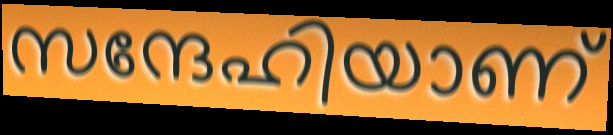
സന്ദേഹിയാണ്